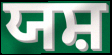
ਯਸ਼